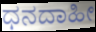
ಧನದಾಹೀ